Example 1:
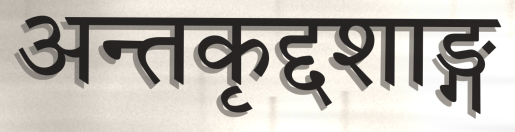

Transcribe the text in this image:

अन्तकृद्दशाङ्ग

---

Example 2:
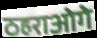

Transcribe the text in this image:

ठहराओगे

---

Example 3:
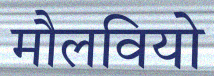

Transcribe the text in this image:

मौलवियो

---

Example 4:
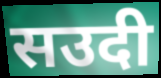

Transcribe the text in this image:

सउदी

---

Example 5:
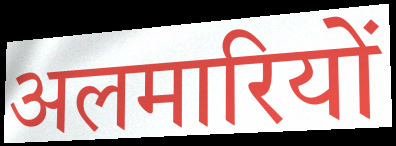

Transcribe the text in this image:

अलमारियों